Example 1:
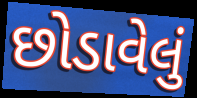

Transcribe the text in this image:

છોડાવેલું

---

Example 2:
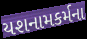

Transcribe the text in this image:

યશનામકર્મના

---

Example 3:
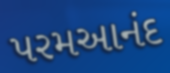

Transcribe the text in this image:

પરમઆનંદ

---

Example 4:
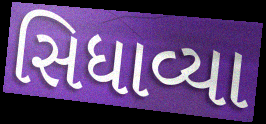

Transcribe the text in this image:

સિધાવ્યા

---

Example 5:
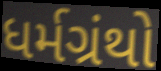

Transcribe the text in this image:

ધર્મગ્રંથો